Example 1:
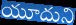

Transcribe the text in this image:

యూదుని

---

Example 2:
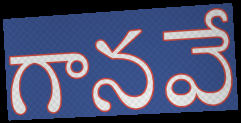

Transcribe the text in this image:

గానవే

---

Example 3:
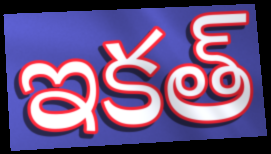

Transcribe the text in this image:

ఇకత్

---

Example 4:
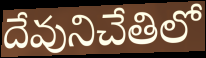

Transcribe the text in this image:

దేవునిచేతిలో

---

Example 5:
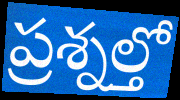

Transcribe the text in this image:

ప్రశ్నల్తో